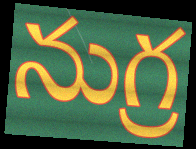
నుగ్ర